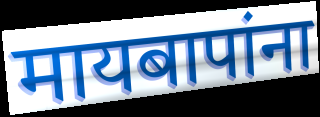
मायबापांना